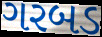
ગરબડ